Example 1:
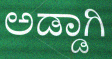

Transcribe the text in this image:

ಅಡ್ಡಾಗಿ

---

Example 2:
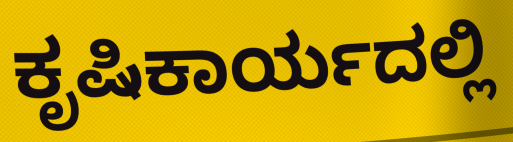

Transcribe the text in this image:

ಕೃಷಿಕಾರ್ಯದಲ್ಲಿ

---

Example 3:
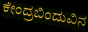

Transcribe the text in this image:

ಕೇಂದ್ರಬಿಂದುವಿನ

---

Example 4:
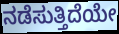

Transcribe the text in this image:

ನಡೆಸುತ್ತಿದೆಯೇ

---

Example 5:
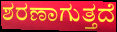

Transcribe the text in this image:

ಶರಣಾಗುತ್ತದೆ